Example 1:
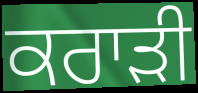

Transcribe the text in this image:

ਕਰਾੜੀ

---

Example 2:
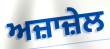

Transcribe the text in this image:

ਅਜ਼ਾਜ਼ੇਲ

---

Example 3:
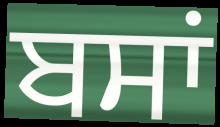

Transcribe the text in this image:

ਬਸਾਂ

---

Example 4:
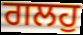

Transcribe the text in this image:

ਗਲਹੁ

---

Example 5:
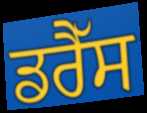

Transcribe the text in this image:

ਡਰੈੱਸ